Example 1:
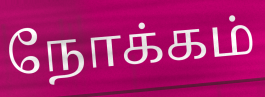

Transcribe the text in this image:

நோக்கம்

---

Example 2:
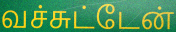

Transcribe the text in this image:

வச்சுட்டேன்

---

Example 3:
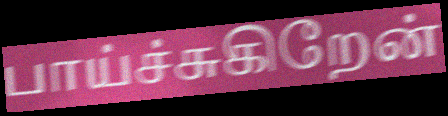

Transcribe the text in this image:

பாய்ச்சுகிறேன்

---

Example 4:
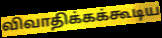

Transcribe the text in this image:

விவாதிக்கக்கூடிய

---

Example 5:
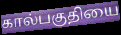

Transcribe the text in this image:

கால்பகுதியை